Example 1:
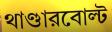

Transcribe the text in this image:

থাণ্ডারবোল্ট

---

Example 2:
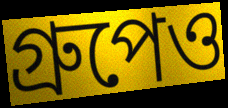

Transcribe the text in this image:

গ্রুপেও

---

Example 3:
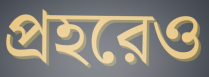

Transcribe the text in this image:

প্রহরেও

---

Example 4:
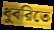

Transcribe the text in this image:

ধুবরিতে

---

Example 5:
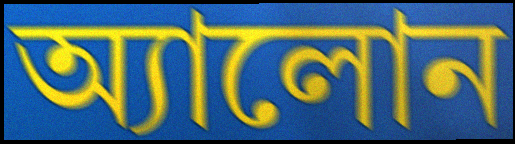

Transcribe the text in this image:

অ্যালোন